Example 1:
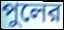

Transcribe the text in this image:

পুলের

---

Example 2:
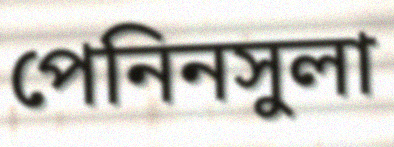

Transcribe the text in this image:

পেনিনসুলা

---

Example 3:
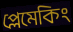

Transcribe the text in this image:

প্লেমেকিং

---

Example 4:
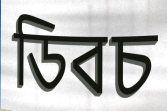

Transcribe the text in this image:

ডিবচ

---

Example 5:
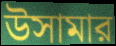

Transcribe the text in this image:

উসামার